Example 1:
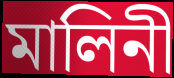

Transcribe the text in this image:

মালিনী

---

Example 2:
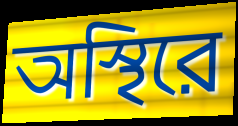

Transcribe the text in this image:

অস্থিরে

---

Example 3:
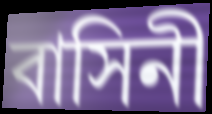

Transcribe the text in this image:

বাসিনী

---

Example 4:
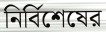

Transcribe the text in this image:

নির্বিশেষের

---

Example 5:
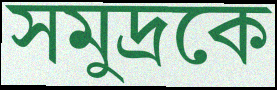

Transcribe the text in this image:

সমুদ্রকে